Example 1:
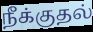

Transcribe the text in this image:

நீக்குதல்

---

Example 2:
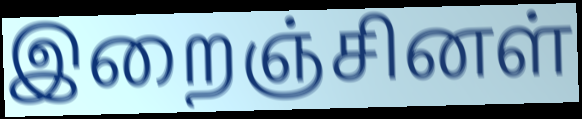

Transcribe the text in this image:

இறைஞ்சினள்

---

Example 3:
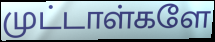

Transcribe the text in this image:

முட்டாள்களே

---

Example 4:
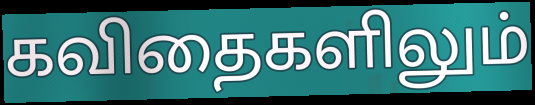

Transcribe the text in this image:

கவிதைகளிலும்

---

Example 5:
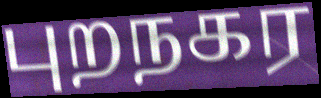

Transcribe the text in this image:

புறநகர